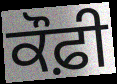
ਕੌਫ਼ੀ